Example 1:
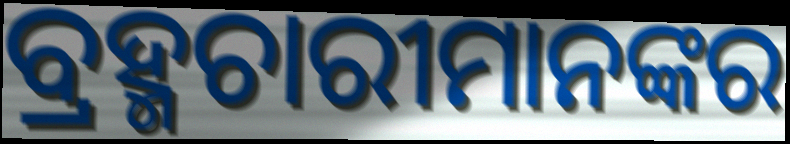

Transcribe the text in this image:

ବ୍ରହ୍ମଚାରୀମାନଙ୍କର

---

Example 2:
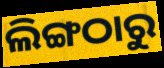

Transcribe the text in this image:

ଲିଙ୍ଗଠାରୁ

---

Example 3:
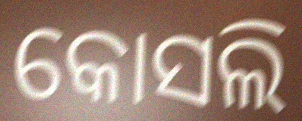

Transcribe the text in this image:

କୋସଲି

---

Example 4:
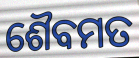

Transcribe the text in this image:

ଶୈବମତ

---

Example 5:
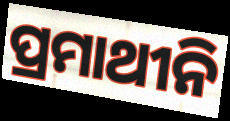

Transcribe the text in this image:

ପ୍ରମାଥୀନି